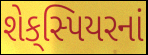
શેક્‌સ્પિયરનાં